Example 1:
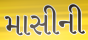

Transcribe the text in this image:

માસીની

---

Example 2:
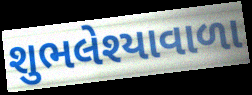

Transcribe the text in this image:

શુભલેશ્યાવાળા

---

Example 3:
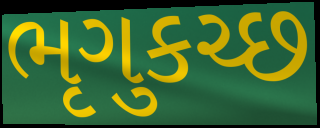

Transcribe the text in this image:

ભૃગુકચ્છ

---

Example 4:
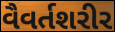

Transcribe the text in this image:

વૈવર્તશરીર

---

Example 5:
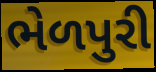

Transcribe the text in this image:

ભેળપુરી